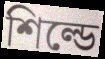
শিল্ডে